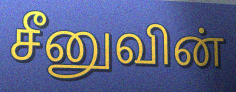
சீனுவின்